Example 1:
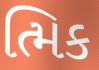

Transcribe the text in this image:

ત્મિક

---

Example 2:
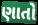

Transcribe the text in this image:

ણાતો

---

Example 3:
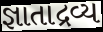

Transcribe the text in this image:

જ્ઞાતાદ્રવ્ય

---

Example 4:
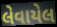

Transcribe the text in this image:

લેવાયેલ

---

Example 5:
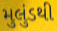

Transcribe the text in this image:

મુલુંડથી